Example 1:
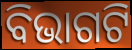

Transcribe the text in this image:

ବିଭାଗଟି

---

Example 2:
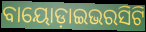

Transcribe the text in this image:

ବାୟୋଡ଼ାଇଭରସିଟି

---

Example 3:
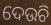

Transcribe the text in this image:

ଦେଉଚି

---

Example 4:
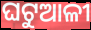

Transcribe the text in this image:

ଘଟୁଆଳୀ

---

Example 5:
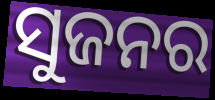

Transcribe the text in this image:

ସୁଜନର